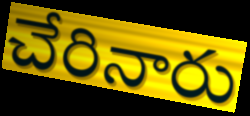
చేరినారు